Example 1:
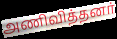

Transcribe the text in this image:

அணிவித்தனர்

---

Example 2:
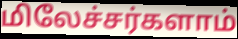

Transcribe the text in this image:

மிலேச்சர்களாம்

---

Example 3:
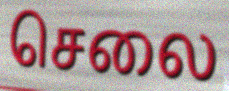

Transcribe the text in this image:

செலை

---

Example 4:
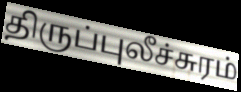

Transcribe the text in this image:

திருப்புலீச்சுரம்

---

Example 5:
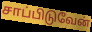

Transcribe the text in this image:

சாப்பிடுவேன்